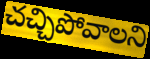
చచ్చిపోవాలని